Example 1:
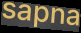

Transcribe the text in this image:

sapna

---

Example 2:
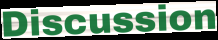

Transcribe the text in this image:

Discussion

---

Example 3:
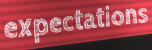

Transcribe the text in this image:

expectations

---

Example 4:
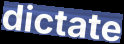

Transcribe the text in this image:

dictate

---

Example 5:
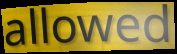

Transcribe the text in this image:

allowed